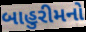
બાહુરીમનો